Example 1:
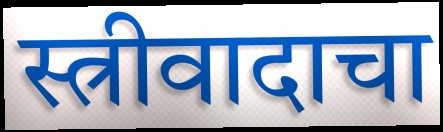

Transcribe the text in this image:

स्त्रीवादाचा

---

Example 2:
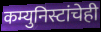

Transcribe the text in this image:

कम्युनिस्टांचेही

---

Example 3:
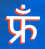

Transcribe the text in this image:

फ्रँ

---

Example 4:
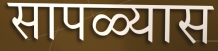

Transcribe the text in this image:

सापळ्यास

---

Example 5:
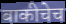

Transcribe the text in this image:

बाकीचेच